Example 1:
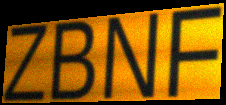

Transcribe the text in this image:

ZBNF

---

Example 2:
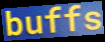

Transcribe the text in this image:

buffs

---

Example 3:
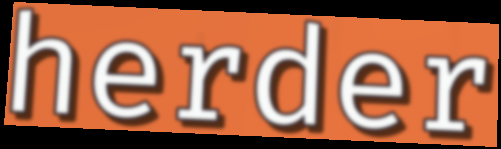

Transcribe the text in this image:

herder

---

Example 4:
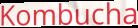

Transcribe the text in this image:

Kombucha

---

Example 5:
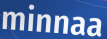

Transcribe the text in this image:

minnaa